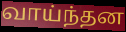
வாய்ந்தன